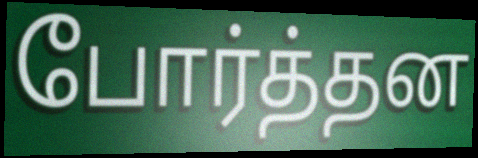
போர்த்தன